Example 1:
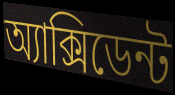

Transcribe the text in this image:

অ্যাক্সিডেন্ট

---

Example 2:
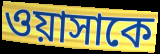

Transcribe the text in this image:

ওয়াসাকে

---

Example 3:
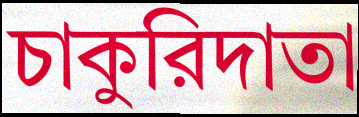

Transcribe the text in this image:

চাকুরিদাতা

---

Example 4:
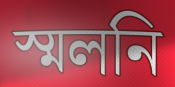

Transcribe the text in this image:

স্মলনি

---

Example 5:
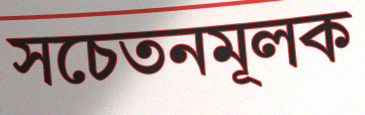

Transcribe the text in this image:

সচেতনমূলক